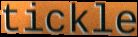
tickle